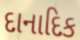
દાનાદિક